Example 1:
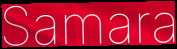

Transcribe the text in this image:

Samara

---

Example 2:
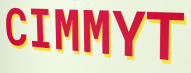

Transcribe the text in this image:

CIMMYT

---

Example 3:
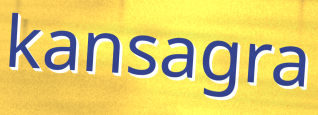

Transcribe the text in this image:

kansagra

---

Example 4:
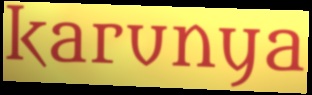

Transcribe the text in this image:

karunya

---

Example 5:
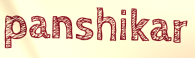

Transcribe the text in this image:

panshikar